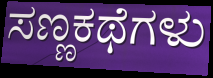
ಸಣ್ಣಕಥೆಗಳು